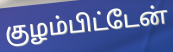
குழம்பிட்டேன்